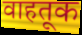
वाहतूक